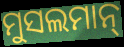
ମୁସଲମାନ୍